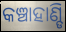
କଞ୍ଚାହାଣ୍ଡି